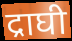
द्राघी